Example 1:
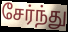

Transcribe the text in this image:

சேர்ந்து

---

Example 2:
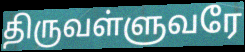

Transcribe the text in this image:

திருவள்ளுவரே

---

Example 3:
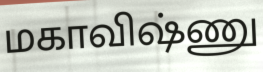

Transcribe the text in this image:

மகாவிஷ்ணு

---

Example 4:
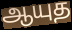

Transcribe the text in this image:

ஆயுத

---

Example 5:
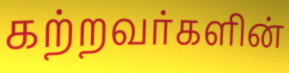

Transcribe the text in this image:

கற்றவர்களின்